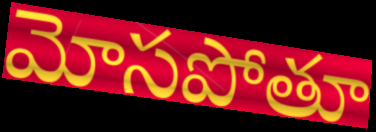
మోసపోతూ